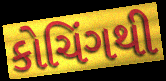
કોચિંગથી